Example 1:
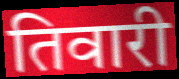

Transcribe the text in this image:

तिवारी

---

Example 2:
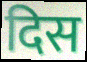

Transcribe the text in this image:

दिस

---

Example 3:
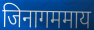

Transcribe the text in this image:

जिनागममाय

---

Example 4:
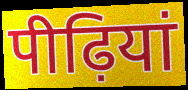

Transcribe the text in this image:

पीढ़ियां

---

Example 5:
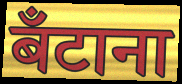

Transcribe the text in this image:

बँटाना